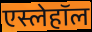
एस्लेहॉल